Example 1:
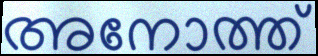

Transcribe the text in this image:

അനോത്ത്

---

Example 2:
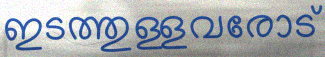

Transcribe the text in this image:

ഇടത്തുള്ളവരോട്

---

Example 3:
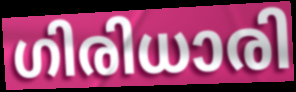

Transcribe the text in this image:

ഗിരിധാരി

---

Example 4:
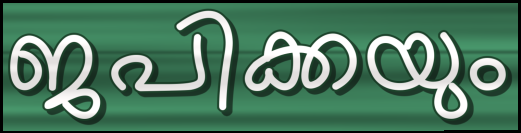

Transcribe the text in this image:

ജപിക്കയും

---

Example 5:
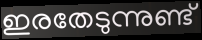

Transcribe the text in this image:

ഇരതേടുന്നുണ്ട്